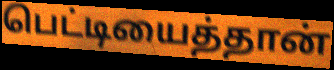
பெட்டியைத்தான்